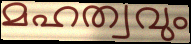
മഹത്വവും